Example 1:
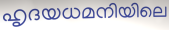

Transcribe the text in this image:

ഹൃദയധമനിയിലെ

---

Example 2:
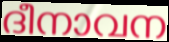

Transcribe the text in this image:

ദീനാവന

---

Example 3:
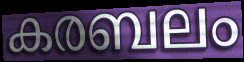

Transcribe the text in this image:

കരബലം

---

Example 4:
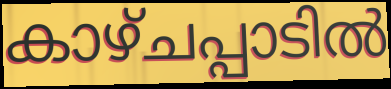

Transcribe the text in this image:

കാഴ്ചപ്പാടിൽ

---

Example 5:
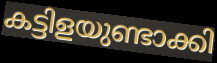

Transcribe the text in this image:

കട്ടിളയുണ്ടാക്കി